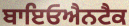
ਬਾਇਓਐਨਟੈਕ